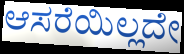
ಆಸರೆಯಿಲ್ಲದೇ